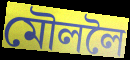
মৌললৈ